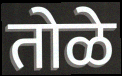
तोळे